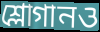
শ্লোগানও